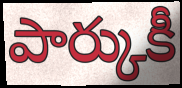
పార్కుకీ